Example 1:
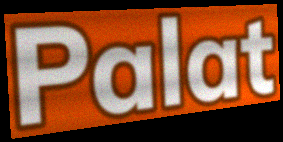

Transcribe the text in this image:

Palat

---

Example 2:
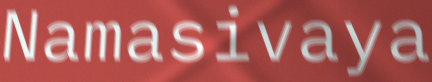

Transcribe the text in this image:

Namasivaya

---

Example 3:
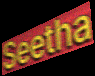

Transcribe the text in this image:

Seetha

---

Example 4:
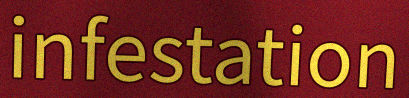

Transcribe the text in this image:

infestation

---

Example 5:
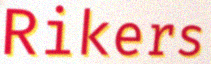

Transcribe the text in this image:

Rikers